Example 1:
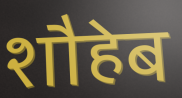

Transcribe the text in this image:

शौहेब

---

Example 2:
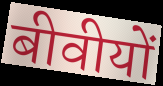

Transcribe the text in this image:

बीवीयों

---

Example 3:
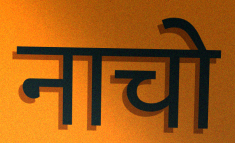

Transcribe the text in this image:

नाचो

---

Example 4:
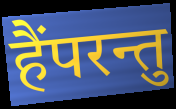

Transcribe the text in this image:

हैंपरन्तु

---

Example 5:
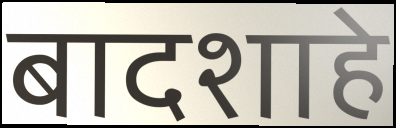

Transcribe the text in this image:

बादशाहे